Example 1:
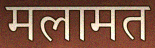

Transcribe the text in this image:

मलामत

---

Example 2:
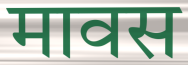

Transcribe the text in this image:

मावस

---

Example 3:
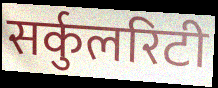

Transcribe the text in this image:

सर्कुलरिटी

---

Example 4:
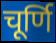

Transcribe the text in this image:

चूर्णि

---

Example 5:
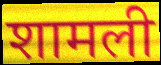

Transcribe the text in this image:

शामली